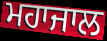
ਮਹਾਜਾਲ